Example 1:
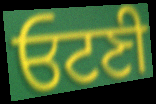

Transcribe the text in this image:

ਓਟਣੀ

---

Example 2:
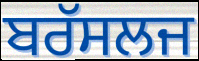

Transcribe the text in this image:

ਬਰੱਸਲਜ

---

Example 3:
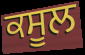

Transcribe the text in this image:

ਕਸੂਲ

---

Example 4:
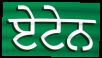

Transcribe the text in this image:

ਏਟੇਨ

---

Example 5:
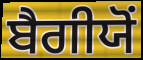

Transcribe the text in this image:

ਬੈਗੀਯੋਂ